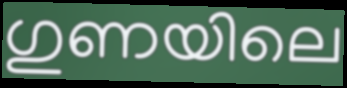
ഗുണയിലെ